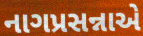
નાગપ્રસન્નાએ